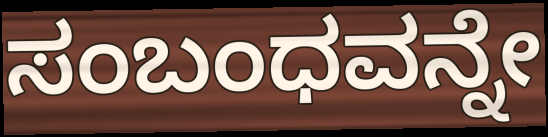
ಸಂಬಂಧವನ್ನೇ